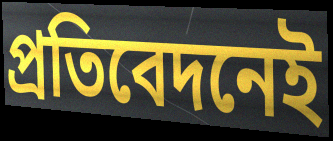
প্রতিবেদনেই